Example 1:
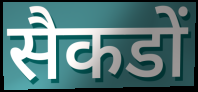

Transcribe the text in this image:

सैकडों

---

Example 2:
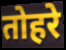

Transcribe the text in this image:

तोहरे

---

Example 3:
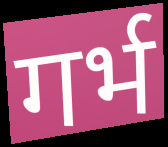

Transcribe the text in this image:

गर्भ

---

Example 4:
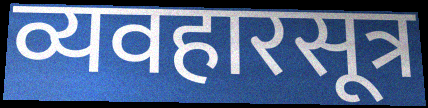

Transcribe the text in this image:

व्यवहारसूत्र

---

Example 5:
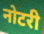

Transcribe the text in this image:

नोटरी